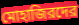
মোহাজিরদের